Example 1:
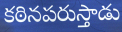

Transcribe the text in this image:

కఠినపరుస్తాడు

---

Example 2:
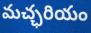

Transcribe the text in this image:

మచ్ఛరియం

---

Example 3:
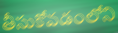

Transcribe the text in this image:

తీసుకోవడంలోని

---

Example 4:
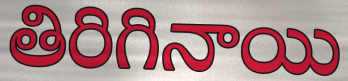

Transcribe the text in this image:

తిరిగినాయి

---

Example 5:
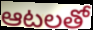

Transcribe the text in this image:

ఆటలతో